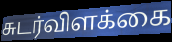
சுடர்விளக்கை